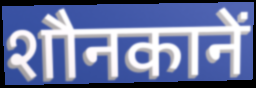
शौनकानें